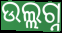
ଉଲ୍ଲଗ୍ନ